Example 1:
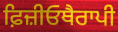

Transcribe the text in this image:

ਫ਼ਿਜ਼ੀਓਥੈਰਾਪੀ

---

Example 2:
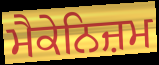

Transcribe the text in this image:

ਮੈਕੇਨਿਜ਼ਮ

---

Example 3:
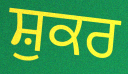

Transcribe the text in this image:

ਸ਼ੁਕਰ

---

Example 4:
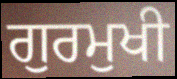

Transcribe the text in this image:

ਗੁਰਮੁਖੀ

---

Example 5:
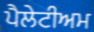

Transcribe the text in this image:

ਪੈਲੇਟੀਅਮ